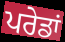
ਪਰੇਡਾਂ